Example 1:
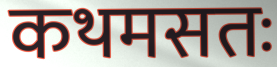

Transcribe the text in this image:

कथमसतः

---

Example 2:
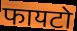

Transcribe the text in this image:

फायटो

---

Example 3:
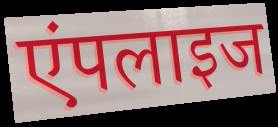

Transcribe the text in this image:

एंपलाइज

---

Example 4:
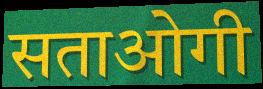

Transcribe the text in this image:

सताओगी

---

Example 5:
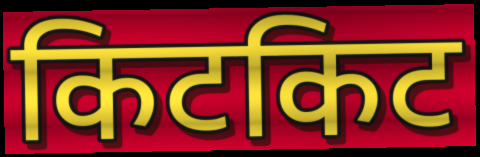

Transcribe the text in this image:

किटकिट